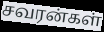
சவரன்கள்